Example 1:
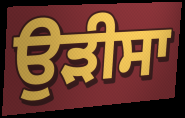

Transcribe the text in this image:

ਉੜੀਸਾ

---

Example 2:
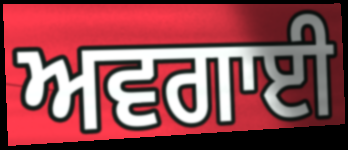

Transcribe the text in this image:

ਅਵਗਾਈ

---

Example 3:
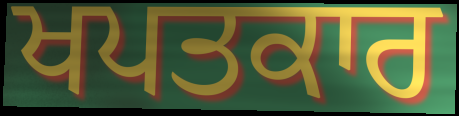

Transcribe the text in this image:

ਖਪਤਕਾਰ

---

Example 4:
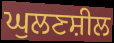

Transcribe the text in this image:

ਘੁਲਣਸ਼ੀਲ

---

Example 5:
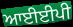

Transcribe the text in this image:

ਆਈਈਪੀ